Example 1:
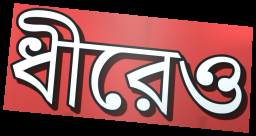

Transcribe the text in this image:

ধীরেও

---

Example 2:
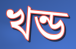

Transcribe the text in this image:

খন্ড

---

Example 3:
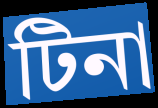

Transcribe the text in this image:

টিনা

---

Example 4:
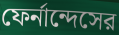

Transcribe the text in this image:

ফের্নান্দেসের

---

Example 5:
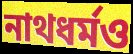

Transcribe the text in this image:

নাথধর্মও